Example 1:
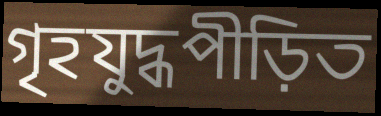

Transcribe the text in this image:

গৃহযুদ্ধপীড়িত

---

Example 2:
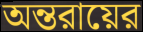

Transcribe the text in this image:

অন্তরায়ের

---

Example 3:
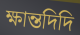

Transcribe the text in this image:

ক্ষান্তদিদি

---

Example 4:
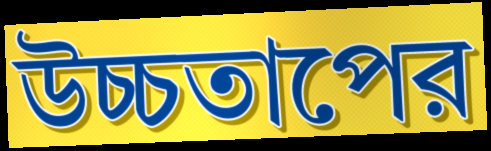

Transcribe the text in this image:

উচ্চতাপের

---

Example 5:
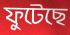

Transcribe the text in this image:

ফুটেছে